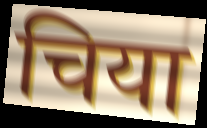
चिया